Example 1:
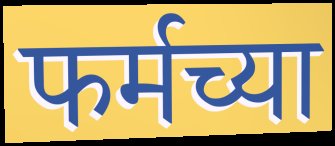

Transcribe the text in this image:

फर्मच्या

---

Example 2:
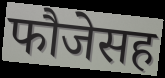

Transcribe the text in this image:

फौजेसह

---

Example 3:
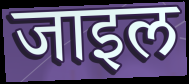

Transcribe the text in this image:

जाइल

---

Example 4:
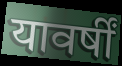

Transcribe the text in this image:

यावर्षीं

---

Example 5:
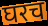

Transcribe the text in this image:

घरच